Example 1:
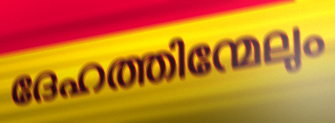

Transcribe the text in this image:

ദേഹത്തിന്മേലും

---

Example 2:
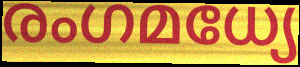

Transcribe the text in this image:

രംഗമധ്യേ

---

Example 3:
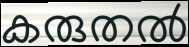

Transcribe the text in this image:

കരുതൽ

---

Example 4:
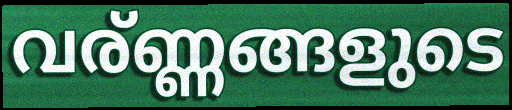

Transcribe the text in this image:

വര്ണ്ണങ്ങളുടെ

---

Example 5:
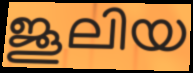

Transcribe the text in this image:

ജൂലിയ